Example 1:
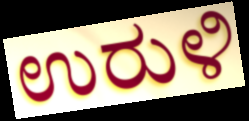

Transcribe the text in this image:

ಉರುಳಿ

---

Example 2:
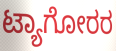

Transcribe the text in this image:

ಟ್ಯಾಗೋರರ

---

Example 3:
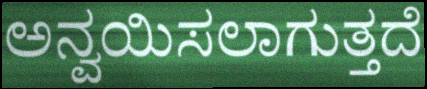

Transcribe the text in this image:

ಅನ್ವಯಿಸಲಾಗುತ್ತದೆ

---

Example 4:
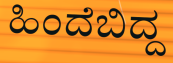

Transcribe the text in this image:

ಹಿಂದೆಬಿದ್ದ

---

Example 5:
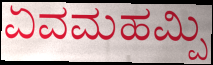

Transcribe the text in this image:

ಏವಮಹಮ್ಪಿ